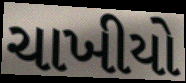
ચાખીયો